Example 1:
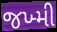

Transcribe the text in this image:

જખ્મી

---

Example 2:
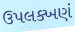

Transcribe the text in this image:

ઉપલક્ખણં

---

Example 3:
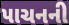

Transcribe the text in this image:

પાચનની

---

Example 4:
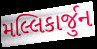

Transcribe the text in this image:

મલ્લિકાર્જુન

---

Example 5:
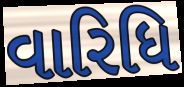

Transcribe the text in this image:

વારિધિ